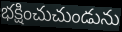
భక్షించుచుండును